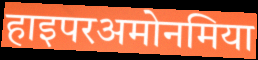
हाइपरअमोनमिया